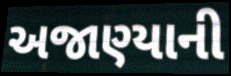
અજાણ્યાની